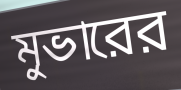
মুভারের